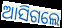
ଆସିଗଲେ